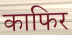
काफिर